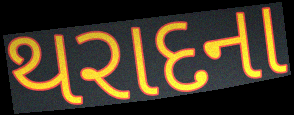
થરાદના